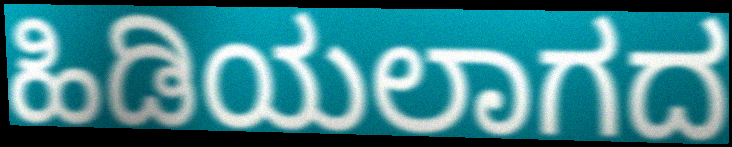
ಹಿಡಿಯಲಾಗದ